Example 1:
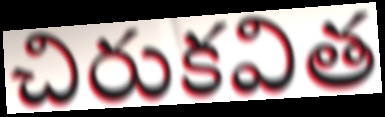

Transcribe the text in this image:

చిరుకవిత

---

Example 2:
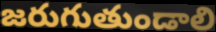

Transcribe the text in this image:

జరుగుతుండాలి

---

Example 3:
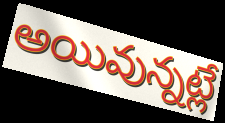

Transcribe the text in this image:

అయివున్నట్లే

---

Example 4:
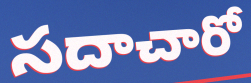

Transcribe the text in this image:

సదాచారో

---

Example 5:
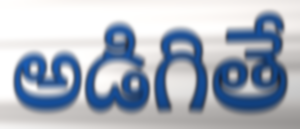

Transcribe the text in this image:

అడిగితే